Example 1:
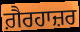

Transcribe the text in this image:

ਗ਼ੈਰਹਾਜ਼ਰ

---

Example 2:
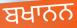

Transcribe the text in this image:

ਬਖਾਨਨ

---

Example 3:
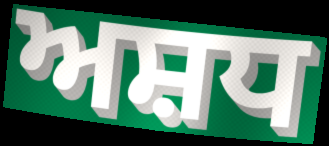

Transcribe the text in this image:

ਅਸ਼ਧ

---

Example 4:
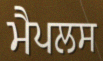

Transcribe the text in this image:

ਮੈਪਲਸ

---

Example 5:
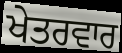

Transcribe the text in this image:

ਖੇਤਰਵਾਰ